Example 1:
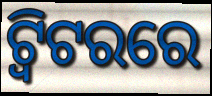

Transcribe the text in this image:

ଟ୍ବିଟରରେ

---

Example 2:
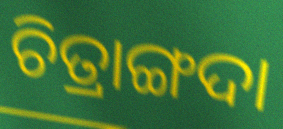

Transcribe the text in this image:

ଚିତ୍ରାଙ୍ଗଦା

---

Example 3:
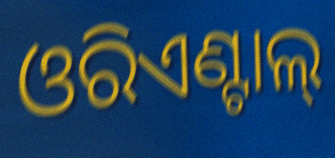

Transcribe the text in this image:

ଓରିଏଣ୍ଟାଲ୍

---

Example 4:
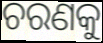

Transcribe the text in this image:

ଚରଣକୁ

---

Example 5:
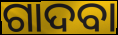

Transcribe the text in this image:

ଗାଦବା